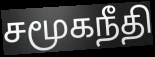
சமூகநீதி